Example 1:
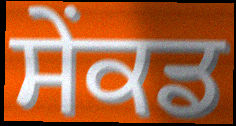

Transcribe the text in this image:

ਸੇਂਕਡ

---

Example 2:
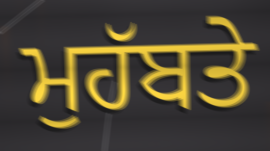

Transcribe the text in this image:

ਮੁਹੱਬਤੇ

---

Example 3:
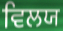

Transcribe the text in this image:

ਵਿਲਯ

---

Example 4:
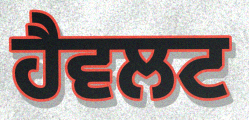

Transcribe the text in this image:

ਹੈਵਲਟ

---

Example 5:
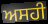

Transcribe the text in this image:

ਅਸਹੀ